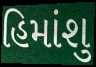
હિમાંશુ